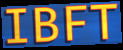
IBFT